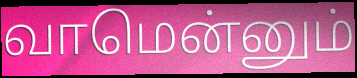
வாமென்னும்